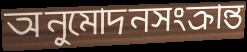
অনুমোদনসংক্রান্ত